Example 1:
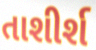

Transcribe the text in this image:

તાશીર્શ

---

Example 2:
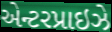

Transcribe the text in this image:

એન્ટરપ્રાઇઝે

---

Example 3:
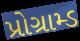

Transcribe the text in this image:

પ્રોગ્રામ્ડ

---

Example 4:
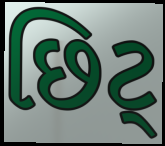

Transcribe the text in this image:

છિટ્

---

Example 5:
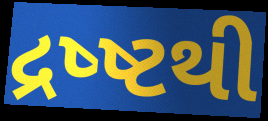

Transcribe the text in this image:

દ્રષ્ષ્ટથી